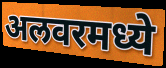
अलवरमध्ये